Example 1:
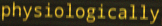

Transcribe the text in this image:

physiologically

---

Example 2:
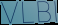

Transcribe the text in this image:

VLBI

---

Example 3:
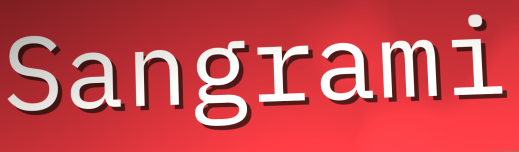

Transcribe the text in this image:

Sangrami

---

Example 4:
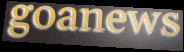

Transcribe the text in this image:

goanews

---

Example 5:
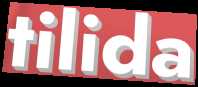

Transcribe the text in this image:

tilida